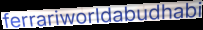
ferrariworldabudhabi